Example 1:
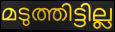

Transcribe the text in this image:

മടുത്തിട്ടില്ല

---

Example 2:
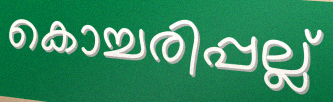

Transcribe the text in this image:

കൊച്ചരിപ്പല്ല്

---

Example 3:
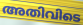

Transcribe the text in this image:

അതിവിടെ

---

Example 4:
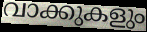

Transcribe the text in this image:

വാക്കുകളും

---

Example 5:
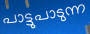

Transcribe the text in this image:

പാട്ടുപാടുന്ന